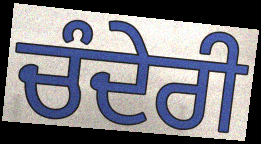
ਚੰਦੇਰੀ